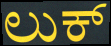
ಲುಕ್